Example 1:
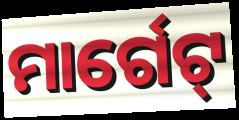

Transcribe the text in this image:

ମାର୍ଗେଟ୍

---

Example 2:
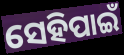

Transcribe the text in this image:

ସେହିପାଇଁ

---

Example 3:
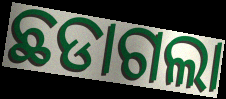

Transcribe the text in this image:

ଛଡାଗଲା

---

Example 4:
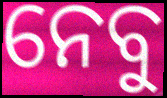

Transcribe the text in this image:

ନେବୁ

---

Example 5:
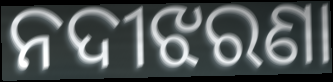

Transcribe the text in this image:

ନଦୀଝରଣା